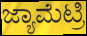
ಜ್ಯಾಮೆಟ್ರಿ